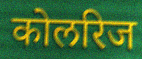
कोलरिज